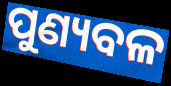
ପୁଣ୍ୟବଳ